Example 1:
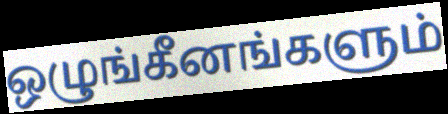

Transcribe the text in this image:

ஒழுங்கீனங்களும்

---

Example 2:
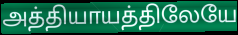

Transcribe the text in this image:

அத்தியாயத்திலேயே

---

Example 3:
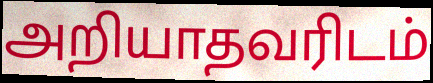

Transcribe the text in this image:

அறியாதவரிடம்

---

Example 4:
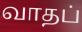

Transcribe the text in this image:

வாதப்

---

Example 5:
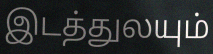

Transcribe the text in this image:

இடத்துலயும்